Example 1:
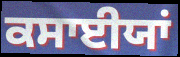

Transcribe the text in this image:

ਕਸਾਈਯਾਂ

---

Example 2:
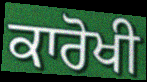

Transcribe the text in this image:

ਕਾਰੋਖੀ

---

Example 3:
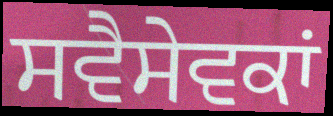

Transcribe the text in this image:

ਸਵੈਸੇਵਕਾਂ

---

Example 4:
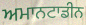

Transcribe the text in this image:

ਅਮਾਨਟਾਡੀਨ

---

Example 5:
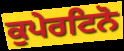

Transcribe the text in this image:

ਕੁਪੇਰਟਿਨੋ